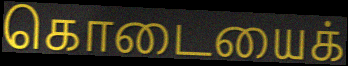
கொடையைக்